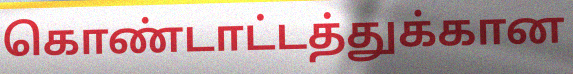
கொண்டாட்டத்துக்கான